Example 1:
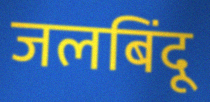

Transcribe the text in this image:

जलबिंदू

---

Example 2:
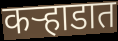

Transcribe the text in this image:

कऱ्हाडात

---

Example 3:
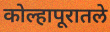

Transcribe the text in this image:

कोल्हापूरातले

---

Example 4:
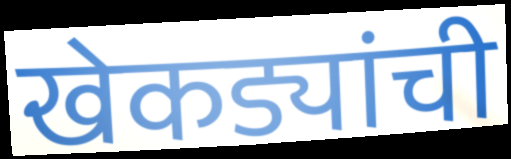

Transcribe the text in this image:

खेकड्यांची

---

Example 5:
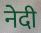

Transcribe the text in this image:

नेदी